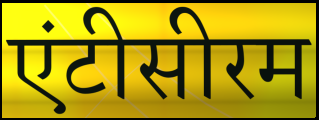
एंटीसीरम